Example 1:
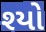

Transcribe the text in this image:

શ્યો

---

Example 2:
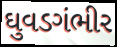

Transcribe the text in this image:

ઘુવડગંભીર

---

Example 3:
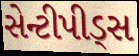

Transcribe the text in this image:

સેન્ટીપીડ્સ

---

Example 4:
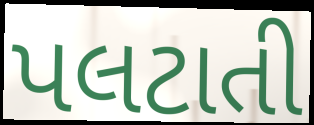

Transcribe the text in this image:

પલટાતી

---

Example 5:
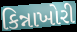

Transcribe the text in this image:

કિન્નાખોરી